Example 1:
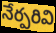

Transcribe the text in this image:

నేర్పరివి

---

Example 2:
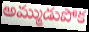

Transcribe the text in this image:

అమ్ముడుపోక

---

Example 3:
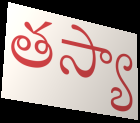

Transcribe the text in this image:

తస్యా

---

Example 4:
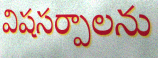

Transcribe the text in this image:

విషసర్పాలను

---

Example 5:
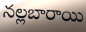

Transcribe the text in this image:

నల్లబారాయి